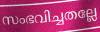
സംഭവിച്ചതല്ലേ